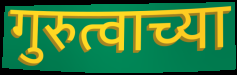
गुरुत्वाच्या